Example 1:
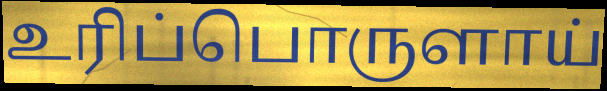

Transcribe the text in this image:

உரிப்பொருளாய்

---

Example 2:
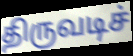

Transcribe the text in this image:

திருவடிச்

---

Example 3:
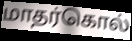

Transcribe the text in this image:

மாதர்கொல்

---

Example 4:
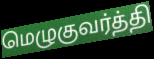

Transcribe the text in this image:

மெழுகுவர்த்தி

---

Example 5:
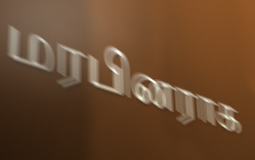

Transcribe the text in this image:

மரபினராக